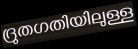
ദ്രുതഗതിയിലുള്ള